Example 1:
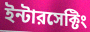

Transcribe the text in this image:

ইন্টারসেক্টিং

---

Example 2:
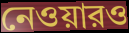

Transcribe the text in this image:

নেওয়ারও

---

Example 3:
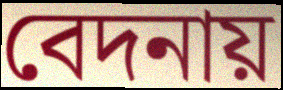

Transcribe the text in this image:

বেদনায়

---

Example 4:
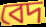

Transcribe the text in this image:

বেদ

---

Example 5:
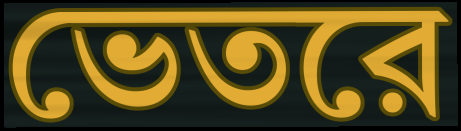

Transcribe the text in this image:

ভেতরে